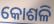
କୋଶଳି